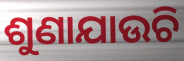
ଶୁଣାଯାଉଚି